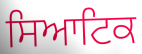
ਸਿਆਟਿਕ